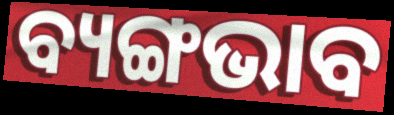
ବ୍ୟଙ୍ଗଭାବ